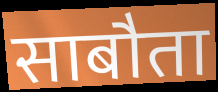
साबौता